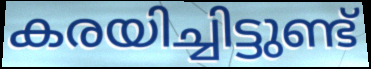
കരയിച്ചിട്ടുണ്ട്